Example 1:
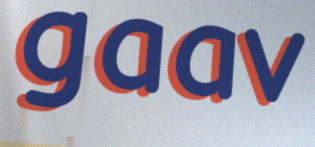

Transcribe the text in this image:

gaav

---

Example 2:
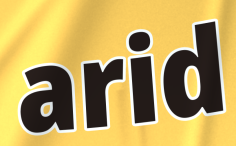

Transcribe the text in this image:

arid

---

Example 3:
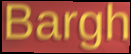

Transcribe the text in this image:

Bargh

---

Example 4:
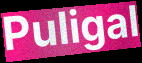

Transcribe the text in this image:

Puligal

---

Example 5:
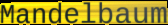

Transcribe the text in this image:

Mandelbaum